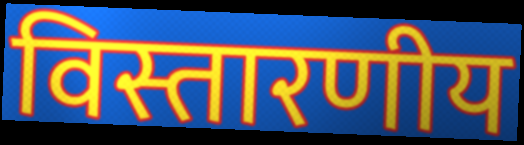
विस्तारणीय